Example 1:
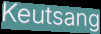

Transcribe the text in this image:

Keutsang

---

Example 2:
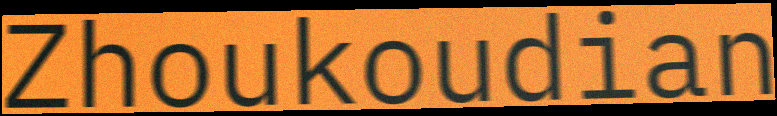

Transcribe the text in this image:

Zhoukoudian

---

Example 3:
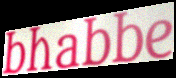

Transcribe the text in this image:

bhabbe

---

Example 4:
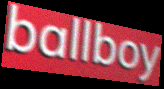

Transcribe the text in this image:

ballboy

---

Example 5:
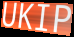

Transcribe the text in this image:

UKIP